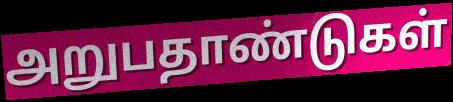
அறுபதாண்டுகள்